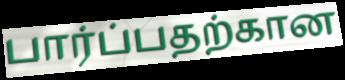
பார்ப்பதற்கான